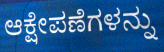
ಆಕ್ಷೇಪಣೆಗಳನ್ನು